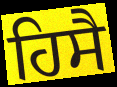
ਹਿਸੈ